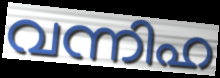
വന്നിഹ